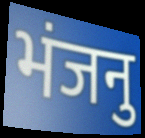
भंजनु